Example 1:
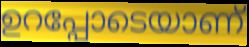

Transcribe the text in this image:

ഉറപ്പോടെയാണ്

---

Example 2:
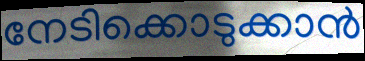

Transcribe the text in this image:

നേടിക്കൊടുക്കാൻ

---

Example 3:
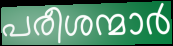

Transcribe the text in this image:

പരീശന്മാർ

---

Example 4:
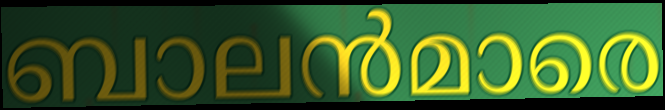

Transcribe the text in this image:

ബാലൻമാരെ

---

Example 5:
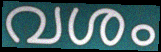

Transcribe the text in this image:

വശം